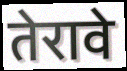
तेरावे